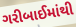
ગરીબાઈમાંથી